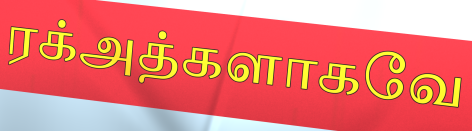
ரக்அத்களாகவே